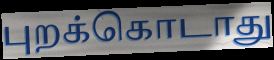
புறக்கொடாது